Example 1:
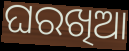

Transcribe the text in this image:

ଘରଖିଆ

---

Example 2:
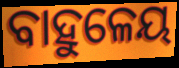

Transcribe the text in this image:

ବାହୁଳେୟ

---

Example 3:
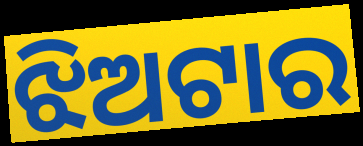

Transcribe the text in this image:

ଝିଅଟାର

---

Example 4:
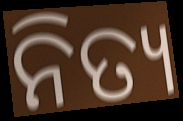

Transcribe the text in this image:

ନିତ୍ୟ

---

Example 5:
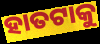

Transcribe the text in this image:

ହାତଟାକୁ